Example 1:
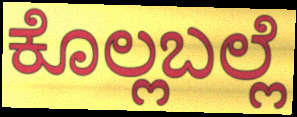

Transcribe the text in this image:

ಕೊಲ್ಲಬಲ್ಲೆ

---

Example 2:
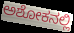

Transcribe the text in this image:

ಅಶೋಕನಲ್ಲಿ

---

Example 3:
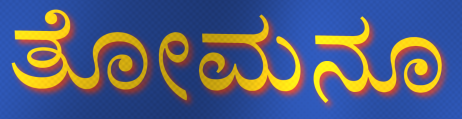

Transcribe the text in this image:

ತೋಮನೂ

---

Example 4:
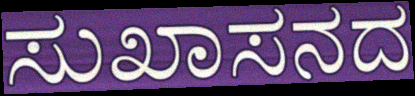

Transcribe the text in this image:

ಸುಖಾಸನದ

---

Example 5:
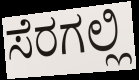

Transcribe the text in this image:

ಸೆರಗಲ್ಲಿ